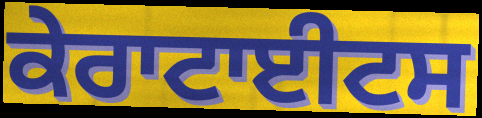
ਕੇਰਾਟਾਈਟਸ